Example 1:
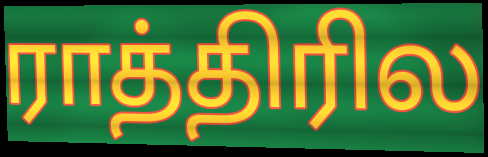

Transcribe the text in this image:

ராத்திரில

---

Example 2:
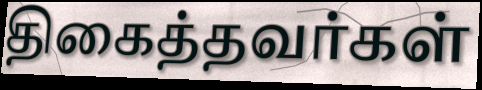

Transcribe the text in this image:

திகைத்தவர்கள்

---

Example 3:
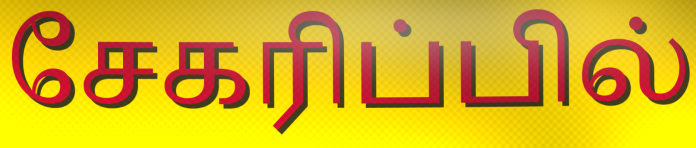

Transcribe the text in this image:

சேகரிப்பில்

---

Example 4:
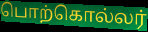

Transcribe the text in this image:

பொற்கொல்லர்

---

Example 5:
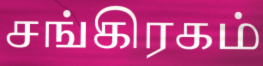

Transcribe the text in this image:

சங்கிரகம்